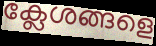
ക്ലേശങ്ങളെ